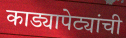
काड्यापेट्यांची